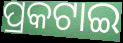
ପ୍ରକଟାଇ